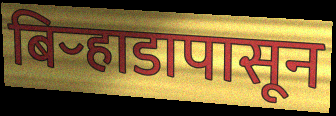
बिऱ्हाडापासून